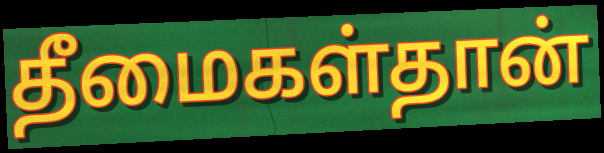
தீமைகள்தான்